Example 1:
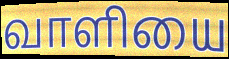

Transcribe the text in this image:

வாளியை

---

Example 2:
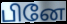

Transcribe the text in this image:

பினே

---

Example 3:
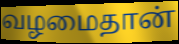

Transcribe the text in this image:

வழமைதான்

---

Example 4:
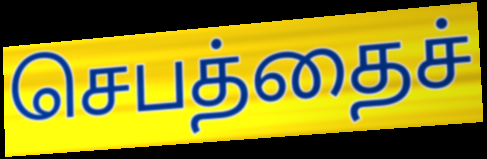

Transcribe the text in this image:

செபத்தைச்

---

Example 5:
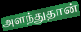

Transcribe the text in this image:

அளந்துதான்